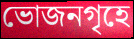
ভোজনগৃহে